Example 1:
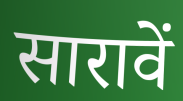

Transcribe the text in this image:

सारावें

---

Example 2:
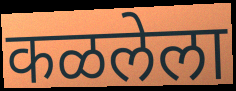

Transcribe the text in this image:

कळलेला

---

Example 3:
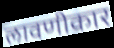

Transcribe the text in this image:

लावणीकार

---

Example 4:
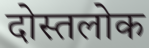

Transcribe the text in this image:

दोस्तलोक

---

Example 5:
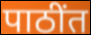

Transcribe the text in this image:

पाठींत